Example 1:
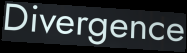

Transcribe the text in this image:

Divergence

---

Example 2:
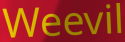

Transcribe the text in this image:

Weevil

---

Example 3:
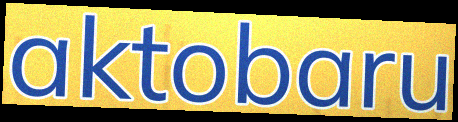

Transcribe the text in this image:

aktobaru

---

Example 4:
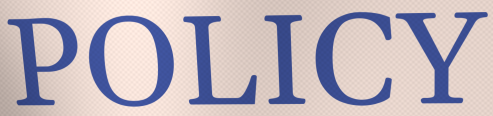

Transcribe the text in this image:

POLICY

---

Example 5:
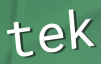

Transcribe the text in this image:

tek